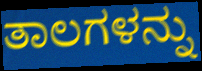
ತಾಲಗಳನ್ನು